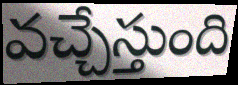
వచ్చేస్తుంది